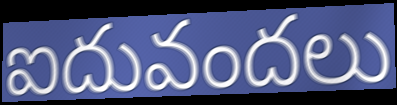
ఐదువందలు